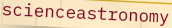
scienceastronomy